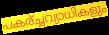
പകര്ച്ചവ്യാധികളും